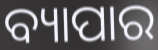
ବ୍ୟାପାର